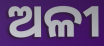
ଅଳୀ